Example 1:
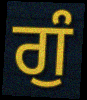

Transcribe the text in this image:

ਗੁੰ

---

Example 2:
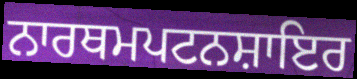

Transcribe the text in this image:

ਨਾਰਥਮਪਟਨਸ਼ਾਇਰ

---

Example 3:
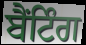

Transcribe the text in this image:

ਬੈਂਟਿੰਗ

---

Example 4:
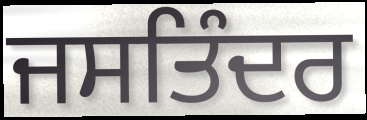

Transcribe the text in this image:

ਜਸਤਿੰਦਰ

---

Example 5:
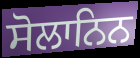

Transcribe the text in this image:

ਸੋਲਾਨਿਨ